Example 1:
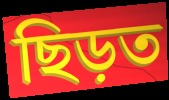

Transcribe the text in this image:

ছিড়ত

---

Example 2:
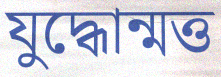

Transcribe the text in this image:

যুদ্ধোন্মত্ত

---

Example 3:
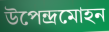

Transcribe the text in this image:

উপেন্দ্রমোহন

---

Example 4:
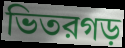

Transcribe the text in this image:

ভিতরগড়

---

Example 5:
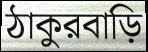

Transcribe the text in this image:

ঠাকুরবাড়ি